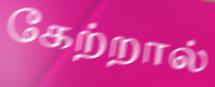
கேற்றால்